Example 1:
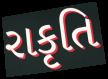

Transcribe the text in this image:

રાકૃતિ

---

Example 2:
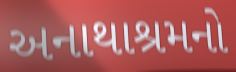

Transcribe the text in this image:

અનાથાશ્રમનો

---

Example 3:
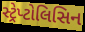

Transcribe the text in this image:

સ્ટ્રેપ્ટોલિસિન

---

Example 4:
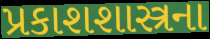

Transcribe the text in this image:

પ્રકાશશાસ્ત્રના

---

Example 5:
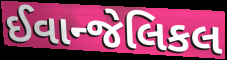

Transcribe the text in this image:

ઈવાન્જેલિકલ